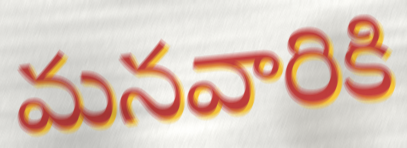
మనవారికి